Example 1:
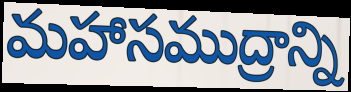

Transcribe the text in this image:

మహాసముద్రాన్ని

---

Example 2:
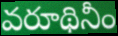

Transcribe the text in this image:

వరూథినీం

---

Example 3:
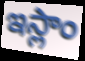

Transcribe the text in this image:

ఇస్లాం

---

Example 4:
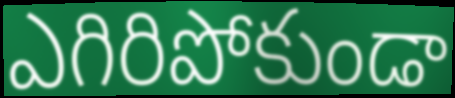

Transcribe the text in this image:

ఎగిరిపోకుండా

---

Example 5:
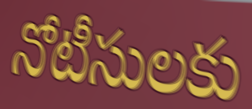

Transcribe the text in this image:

నోటీసులకు